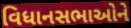
વિધાનસભાઓને